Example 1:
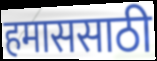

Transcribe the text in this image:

हमाससाठी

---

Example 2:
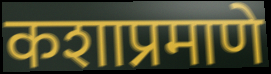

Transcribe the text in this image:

कशाप्रमाणे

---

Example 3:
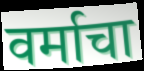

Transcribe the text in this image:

वर्माचा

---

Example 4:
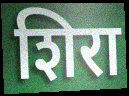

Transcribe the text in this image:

शिरा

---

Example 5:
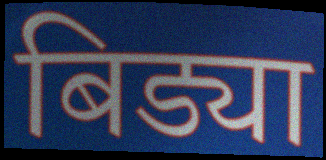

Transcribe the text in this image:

बिड्या